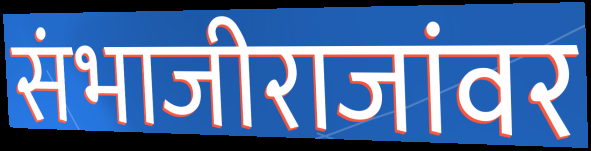
संभाजीराजांवर